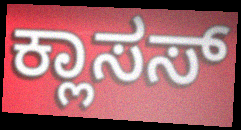
ಕ್ಲಾಸಸ್